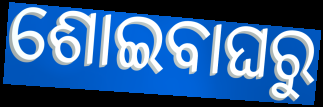
ଶୋଇବାଘରୁ